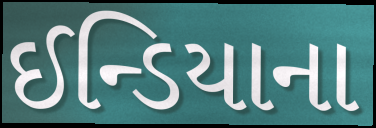
ઈન્ડિયાના